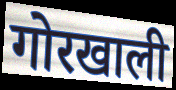
गोरखाली